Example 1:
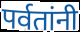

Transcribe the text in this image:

पर्वतांनी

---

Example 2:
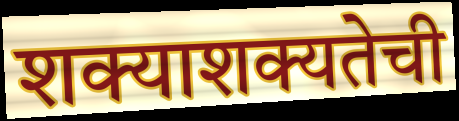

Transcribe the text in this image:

शक्याशक्यतेची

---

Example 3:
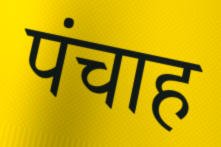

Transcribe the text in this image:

पंचाह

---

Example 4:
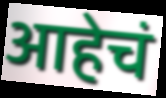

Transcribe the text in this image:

आहेचं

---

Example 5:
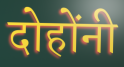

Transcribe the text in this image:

दोहोंनी